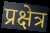
प्रक्षेत्र